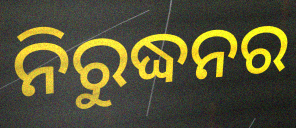
ନିରୁଦ୍ଧନର